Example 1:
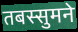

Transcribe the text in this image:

तबस्सुमने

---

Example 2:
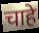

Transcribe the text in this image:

चाहे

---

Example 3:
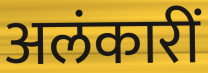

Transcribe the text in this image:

अलंकारीं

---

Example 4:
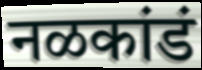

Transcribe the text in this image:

नळकांडं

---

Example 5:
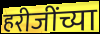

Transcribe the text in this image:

हरीजींच्या